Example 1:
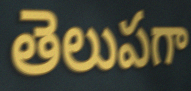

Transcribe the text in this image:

తెలుపగా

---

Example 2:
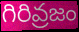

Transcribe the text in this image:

గిరివ్రజం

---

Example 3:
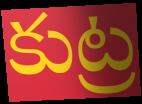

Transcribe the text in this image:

కుట్ర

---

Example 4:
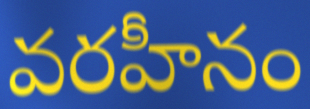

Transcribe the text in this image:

వరహీనం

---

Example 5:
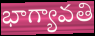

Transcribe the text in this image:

భాగ్యావతి